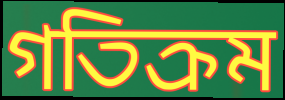
গতিক্রম